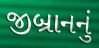
જીબ્રાનનું